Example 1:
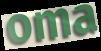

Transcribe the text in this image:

oma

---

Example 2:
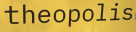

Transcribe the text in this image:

theopolis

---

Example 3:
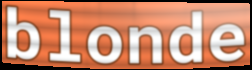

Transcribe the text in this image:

blonde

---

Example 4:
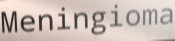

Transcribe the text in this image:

Meningioma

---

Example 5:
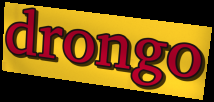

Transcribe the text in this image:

drongo